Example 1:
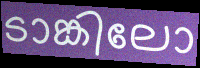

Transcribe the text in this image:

ടാങ്കിലോ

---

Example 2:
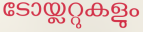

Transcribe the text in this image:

ടോയ്ലറ്റുകളും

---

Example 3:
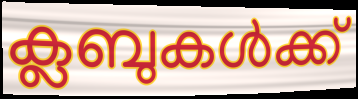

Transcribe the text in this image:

ക്ലബുകൾക്ക്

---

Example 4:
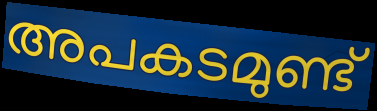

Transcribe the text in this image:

അപകടമുണ്ട്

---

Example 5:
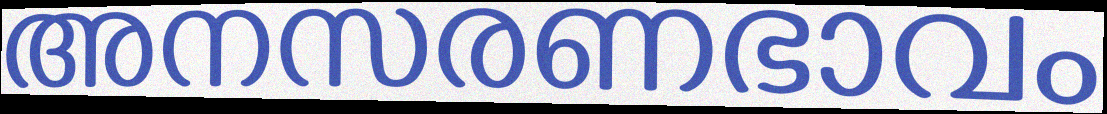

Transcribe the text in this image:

അനസരണഭാവം